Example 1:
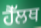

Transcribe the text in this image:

ਹੈੱਲਥ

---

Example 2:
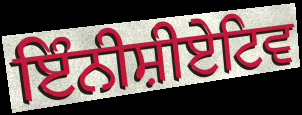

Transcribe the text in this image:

ਇੰਨੀਸ਼ੀਏਟਿਵ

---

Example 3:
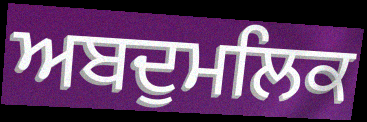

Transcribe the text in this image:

ਅਬਦੁਮਲਿਕ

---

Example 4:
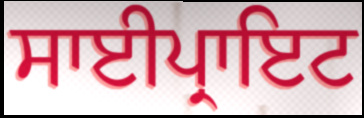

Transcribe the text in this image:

ਸਾਈਪ੍ਰਾਇਟ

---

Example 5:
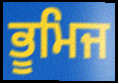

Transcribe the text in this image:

ਭੂਮਿਜ